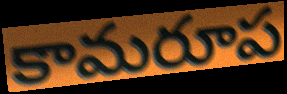
కామరూప